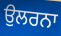
ਉਲਰਨਾ